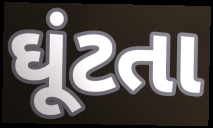
ઘૂંટતા